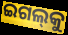
ଇଗଲ୍‌କୁ